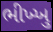
ભીખ્ખુ